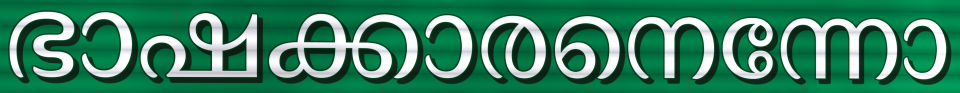
ഭാഷക്കാരനെന്നോ